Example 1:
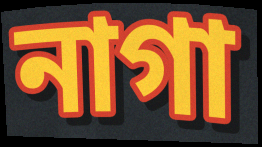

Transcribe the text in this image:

নাগা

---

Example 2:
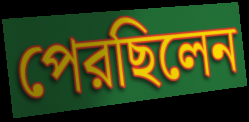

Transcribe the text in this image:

পেরছিলেন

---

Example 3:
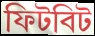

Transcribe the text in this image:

ফিটবিট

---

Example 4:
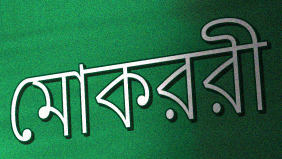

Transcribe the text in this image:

মোকররী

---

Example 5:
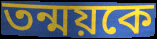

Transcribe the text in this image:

তন্ময়কে